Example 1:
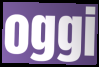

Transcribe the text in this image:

oggi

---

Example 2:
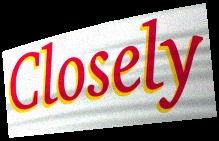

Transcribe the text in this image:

Closely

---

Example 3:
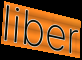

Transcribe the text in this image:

liber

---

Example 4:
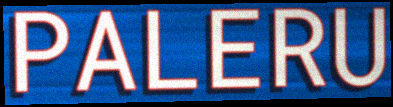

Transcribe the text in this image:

PALERU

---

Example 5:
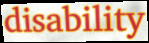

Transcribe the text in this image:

disability